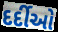
દર્દીઓ